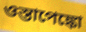
ওস্তাপেঙ্কো